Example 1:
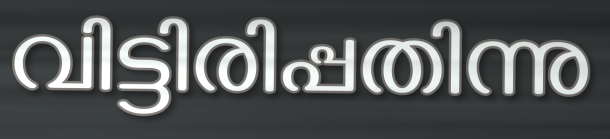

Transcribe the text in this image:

വിട്ടിരിപ്പതിന്നു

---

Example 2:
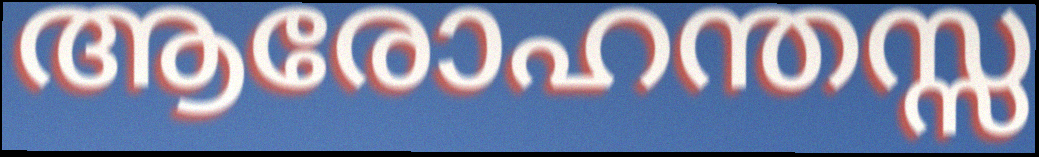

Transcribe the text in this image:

ആരോഹന്തസ്സ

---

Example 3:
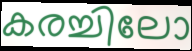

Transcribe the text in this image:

കരച്ചിലോ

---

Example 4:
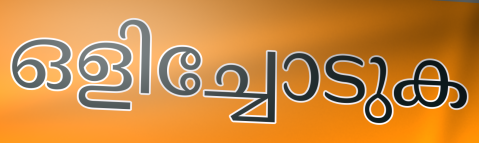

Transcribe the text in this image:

ഒളിച്ചോടുക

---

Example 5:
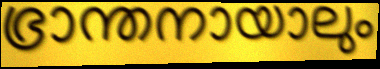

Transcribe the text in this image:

ഭ്രാന്തനായാലും